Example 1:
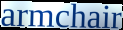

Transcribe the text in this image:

armchair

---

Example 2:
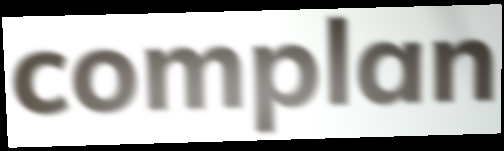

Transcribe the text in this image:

complan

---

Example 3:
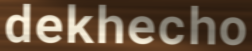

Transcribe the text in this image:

dekhecho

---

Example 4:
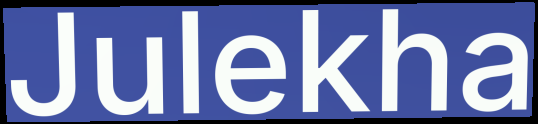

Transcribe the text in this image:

Julekha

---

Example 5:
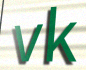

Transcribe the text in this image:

vk